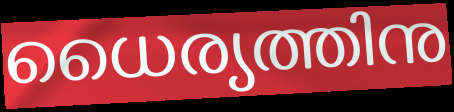
ധൈര്യത്തിനു